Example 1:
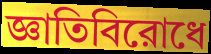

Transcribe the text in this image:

জ্ঞাতিবিরোধে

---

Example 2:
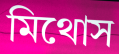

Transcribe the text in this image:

মিথোস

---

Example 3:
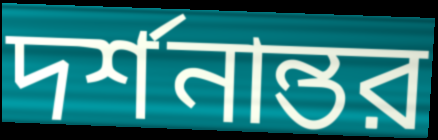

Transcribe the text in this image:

দর্শনান্তর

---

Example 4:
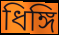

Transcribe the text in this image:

ধিঙ্গি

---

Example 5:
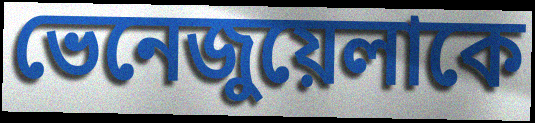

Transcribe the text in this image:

ভেনেজুয়েলাকে